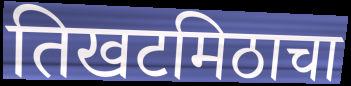
तिखटमिठाचा